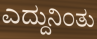
ಎದ್ದುನಿಂತು